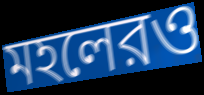
মহলেরও